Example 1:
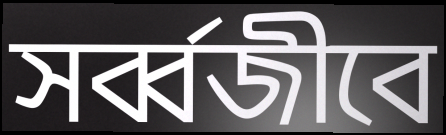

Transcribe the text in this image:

সর্ব্বজীবে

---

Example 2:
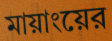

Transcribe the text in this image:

মায়াংয়ের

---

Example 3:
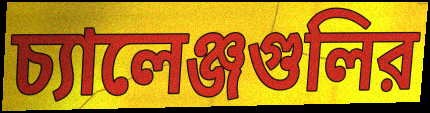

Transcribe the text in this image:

চ্যালেঞ্জগুলির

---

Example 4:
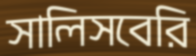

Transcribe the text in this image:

সালিসবেরি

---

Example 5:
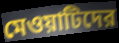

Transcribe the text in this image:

মেওয়াটিদের